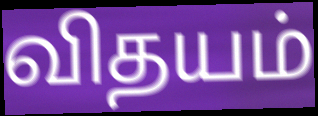
விதயம்